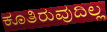
ಕೂತಿರುವುದಿಲ್ಲ